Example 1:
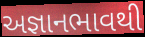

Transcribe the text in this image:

અજ્ઞાનભાવથી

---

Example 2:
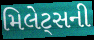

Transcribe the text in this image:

મિલેટ્સની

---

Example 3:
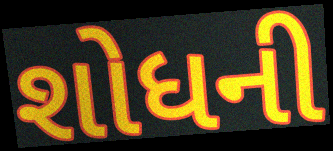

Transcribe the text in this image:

શોધની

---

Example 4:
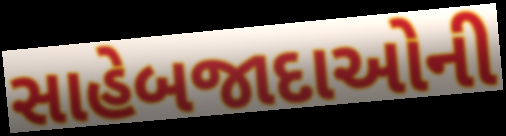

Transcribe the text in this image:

સાહેબજાદાઓની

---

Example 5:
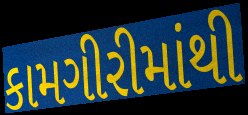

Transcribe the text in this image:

કામગીરીમાંથી